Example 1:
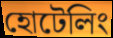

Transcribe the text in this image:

হোটেলিং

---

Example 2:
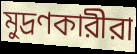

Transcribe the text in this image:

মুদ্রণকারীরা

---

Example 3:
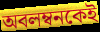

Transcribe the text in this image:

অবলম্বনকেই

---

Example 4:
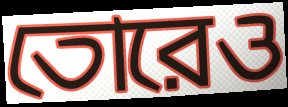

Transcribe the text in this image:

তোরেও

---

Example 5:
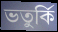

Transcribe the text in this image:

ভতুর্কি